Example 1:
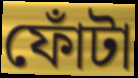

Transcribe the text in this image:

ফোঁটা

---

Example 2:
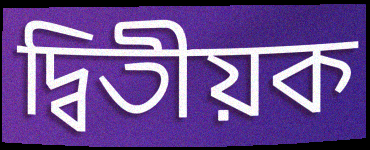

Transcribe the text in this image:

দ্বিতীয়ক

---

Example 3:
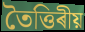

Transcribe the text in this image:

তৈত্তিৰীয়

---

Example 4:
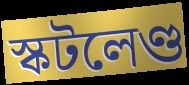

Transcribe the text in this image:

স্কটলেণ্ড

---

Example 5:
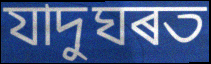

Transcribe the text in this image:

যাদুঘৰত